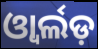
ଓ୍ୱାର୍ଲଡ଼